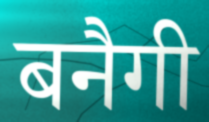
बनैगी